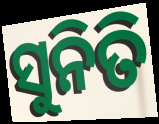
ସୁନିତି